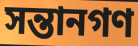
সন্তানগণ